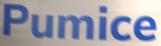
Pumice